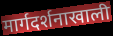
मार्गदर्शनाखाली